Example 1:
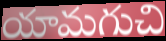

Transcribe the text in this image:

యామగుచి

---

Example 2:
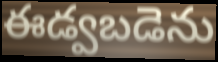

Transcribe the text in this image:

ఈడ్వబడెను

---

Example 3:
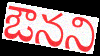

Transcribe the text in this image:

ఔనని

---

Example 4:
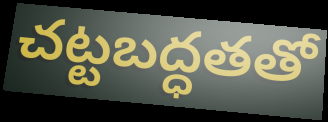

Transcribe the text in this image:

చట్టబద్ధతతో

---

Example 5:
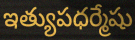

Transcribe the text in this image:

ఇత్యుపధర్మేషు